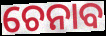
ଚେନାବ